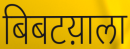
बिबटय़ाला